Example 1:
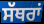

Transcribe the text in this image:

ਸੱਥਰਾਂ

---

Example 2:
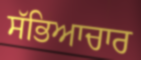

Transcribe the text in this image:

ਸੱਭਿਆਚਾਰ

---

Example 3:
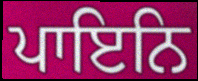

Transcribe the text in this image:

ਪਾਇਨਿ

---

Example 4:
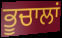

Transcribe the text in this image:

ਭੂਚਾਲਾਂ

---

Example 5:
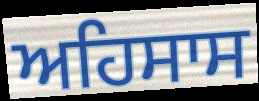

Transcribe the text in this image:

ਅਹਿਸਾਸ